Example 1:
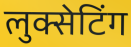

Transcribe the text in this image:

लुक्सेटिंग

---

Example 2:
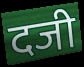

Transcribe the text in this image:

दजी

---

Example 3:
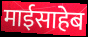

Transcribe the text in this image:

माईसाहेब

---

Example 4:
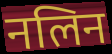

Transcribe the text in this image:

नलिन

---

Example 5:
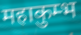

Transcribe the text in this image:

महाकुम्भ